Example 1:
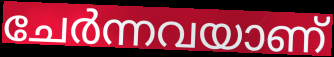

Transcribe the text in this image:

ചേർന്നവയാണ്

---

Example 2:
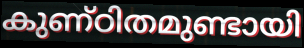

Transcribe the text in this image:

കുണ്ഠിതമുണ്ടായി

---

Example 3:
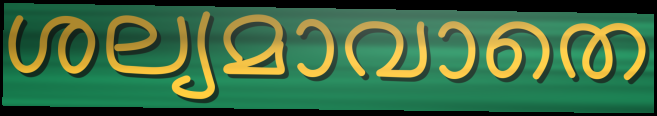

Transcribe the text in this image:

ശല്യമാവാതെ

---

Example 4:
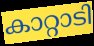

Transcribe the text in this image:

കാറ്റാടി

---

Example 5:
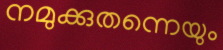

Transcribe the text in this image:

നമുക്കുതന്നെയും